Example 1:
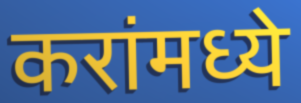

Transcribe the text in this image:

करांमध्ये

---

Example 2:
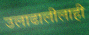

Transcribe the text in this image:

उलाढालीलाही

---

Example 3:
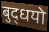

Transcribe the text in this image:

बुद्धयो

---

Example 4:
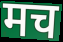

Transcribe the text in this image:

मच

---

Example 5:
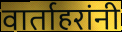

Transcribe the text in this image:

वार्ताहरांनी